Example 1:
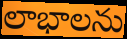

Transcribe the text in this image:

లాభాలను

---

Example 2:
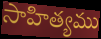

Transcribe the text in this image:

సాహిత్యము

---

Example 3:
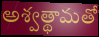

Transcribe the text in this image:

అశ్వత్థామతో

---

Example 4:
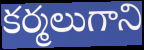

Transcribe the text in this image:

కర్మలుగాని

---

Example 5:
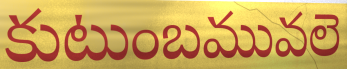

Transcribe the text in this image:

కుటుంబమువలె